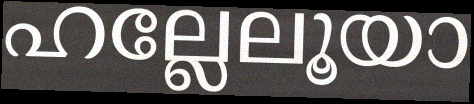
ഹല്ലേലൂയാ